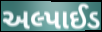
અલ્પાઈડ